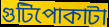
গুটিপোকাটা